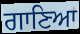
ਗਾਣਿਆ